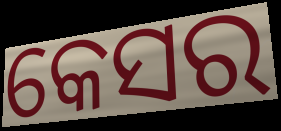
କେସର